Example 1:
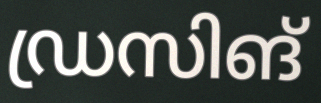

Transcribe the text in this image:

ഡ്രസിങ്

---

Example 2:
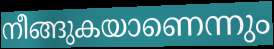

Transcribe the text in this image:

നീങ്ങുകയാണെന്നും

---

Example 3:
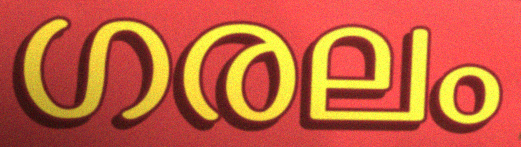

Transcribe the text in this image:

ഗരലം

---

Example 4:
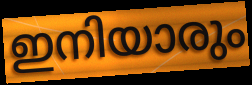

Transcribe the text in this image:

ഇനിയാരും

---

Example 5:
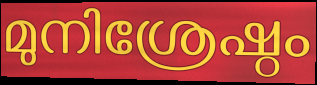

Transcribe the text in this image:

മുനിശ്രേഷ്ഠം